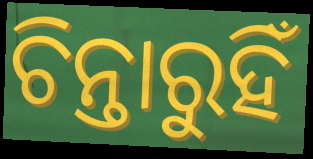
ଚିନ୍ତାରୁହିଁ